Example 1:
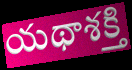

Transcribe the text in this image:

యథాశక్తి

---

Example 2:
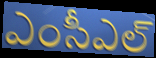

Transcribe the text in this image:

ఎంసీఎల్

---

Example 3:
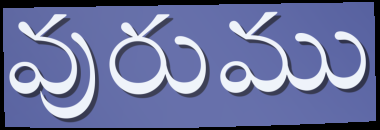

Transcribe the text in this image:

వురుము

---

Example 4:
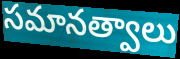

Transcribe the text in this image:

సమానత్వాలు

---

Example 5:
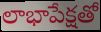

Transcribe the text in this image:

లాభాపేక్షతో